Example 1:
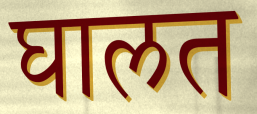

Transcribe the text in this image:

घालत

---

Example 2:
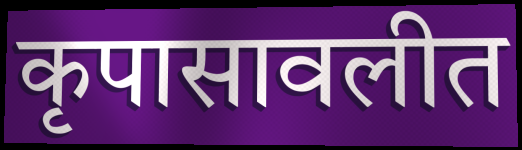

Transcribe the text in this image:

कृपासावलीत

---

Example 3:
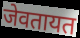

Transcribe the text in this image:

जेवतायत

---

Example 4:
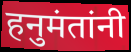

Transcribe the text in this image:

हनुमंतांनी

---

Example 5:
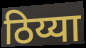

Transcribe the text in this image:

ठिय्या